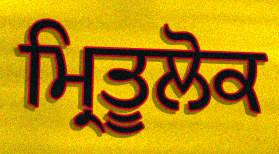
ਮ੍ਰਿਤੂਲੋਕ